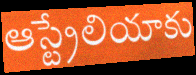
ఆస్ట్రేలియాకు